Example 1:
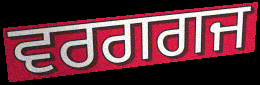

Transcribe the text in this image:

ਵਰਗਗਜ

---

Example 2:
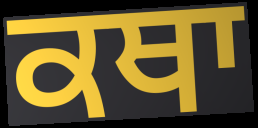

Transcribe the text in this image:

ਕਥਾ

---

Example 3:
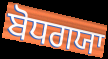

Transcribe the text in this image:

ਬੋਧਗਯਾ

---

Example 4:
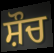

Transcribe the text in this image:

ਸ਼ੌਚ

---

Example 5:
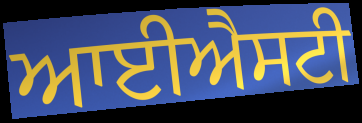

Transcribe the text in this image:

ਆਈਐਸਟੀ